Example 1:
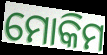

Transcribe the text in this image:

ମୋକିମ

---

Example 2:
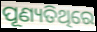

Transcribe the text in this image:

ପୂଣ୍ୟତିଥିରେ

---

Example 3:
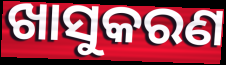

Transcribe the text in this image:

ଖାସୁକରଣ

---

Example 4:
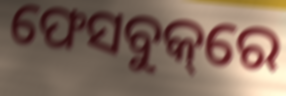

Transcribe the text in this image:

ଫେସବୁକ୍‌ରେ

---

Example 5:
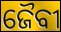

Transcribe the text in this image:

ଜୈବୀ